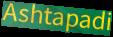
Ashtapadi